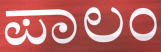
ಪಾಲಂ